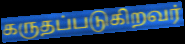
கருதப்படுகிறவர்